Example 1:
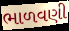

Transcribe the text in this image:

ભાળવણી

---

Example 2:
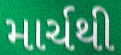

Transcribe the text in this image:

માર્ચથી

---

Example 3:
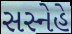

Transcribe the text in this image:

સસ્નેહે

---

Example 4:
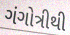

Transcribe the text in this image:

ગંગોત્રીથી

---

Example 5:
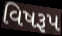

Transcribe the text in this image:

વિષરૂપ